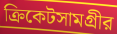
ক্রিকেটসামগ্রীর